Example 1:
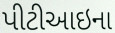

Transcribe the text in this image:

પીટીઆઇના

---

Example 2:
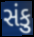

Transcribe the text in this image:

સંકુ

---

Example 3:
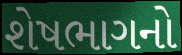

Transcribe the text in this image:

શેષભાગનો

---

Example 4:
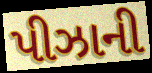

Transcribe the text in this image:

પીઝાની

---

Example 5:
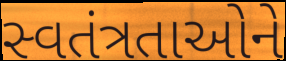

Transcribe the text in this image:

સ્વતંત્રતાઓને